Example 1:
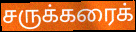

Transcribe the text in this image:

சருக்கரைக்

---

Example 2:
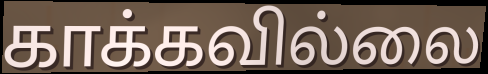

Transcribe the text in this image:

காக்கவில்லை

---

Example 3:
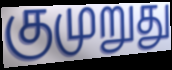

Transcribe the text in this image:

குமுறுது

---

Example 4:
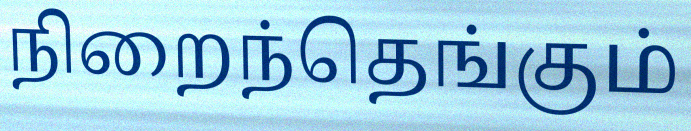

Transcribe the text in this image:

நிறைந்தெங்கும்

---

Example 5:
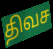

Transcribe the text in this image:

திவச